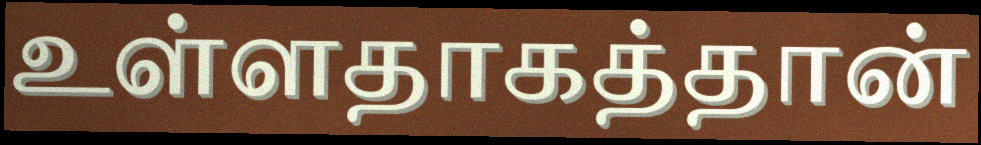
உள்ளதாகத்தான்